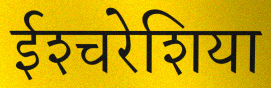
ईश्चरेशिया